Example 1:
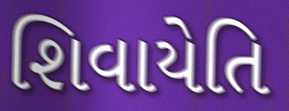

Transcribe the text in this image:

શિવાયેતિ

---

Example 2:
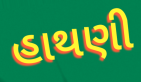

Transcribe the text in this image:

હાથણી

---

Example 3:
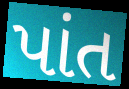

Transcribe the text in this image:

પાંત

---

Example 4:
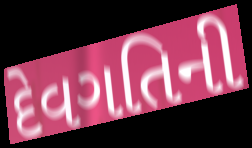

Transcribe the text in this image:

દેવગતિની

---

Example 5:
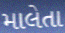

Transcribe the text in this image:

માલેતા